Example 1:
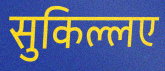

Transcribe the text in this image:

सुकिल्लए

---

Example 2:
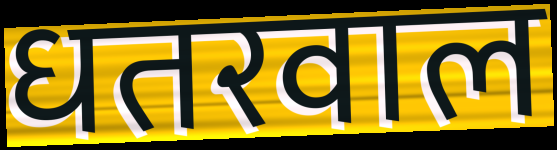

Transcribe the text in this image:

धतरवाल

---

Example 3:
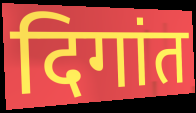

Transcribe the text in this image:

दिगांत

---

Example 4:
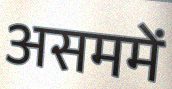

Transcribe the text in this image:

असममें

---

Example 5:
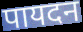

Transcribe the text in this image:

पायदन